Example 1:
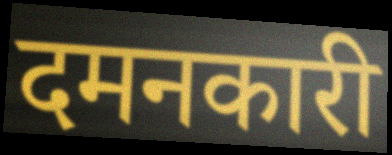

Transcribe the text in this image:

दमनकारी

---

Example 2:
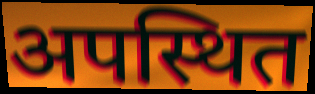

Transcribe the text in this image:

अपस्थित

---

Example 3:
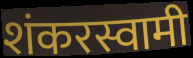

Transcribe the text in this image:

शंकरस्वामी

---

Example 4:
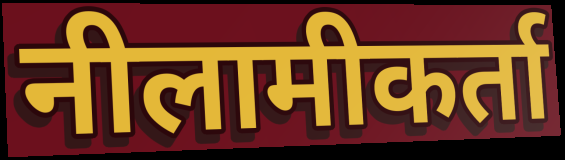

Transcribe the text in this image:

नीलामीकर्ता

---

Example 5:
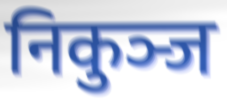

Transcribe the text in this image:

निकुञ्ज